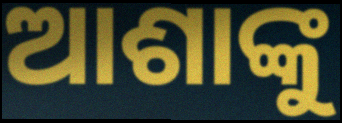
ଆଶାଙ୍କୁ